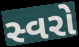
સ્વરો